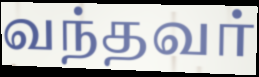
வந்தவர்